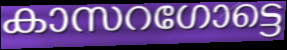
കാസറഗോട്ടെ